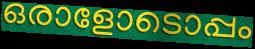
ഒരാളോടൊപ്പം